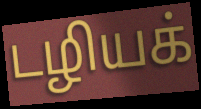
டழியக்